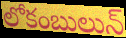
లోకంబులున్